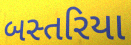
બસ્તરિયા